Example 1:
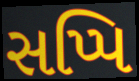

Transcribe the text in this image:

સપ્પિ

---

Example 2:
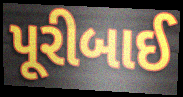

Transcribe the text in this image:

પૂરીબાઈ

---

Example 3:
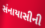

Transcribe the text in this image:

સંનાયાસીની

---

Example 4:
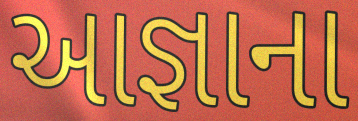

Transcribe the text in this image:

આજ્ઞાના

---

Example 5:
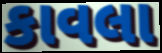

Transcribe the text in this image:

કાવલા